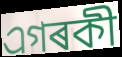
এগৰকী